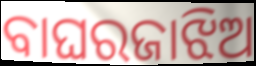
ବାଘରଜାଝିଅ